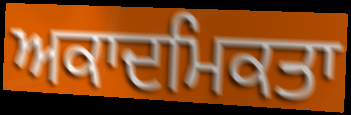
ਅਕਾਦਮਿਕਤਾ